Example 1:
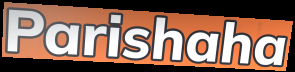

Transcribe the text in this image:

Parishaha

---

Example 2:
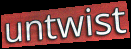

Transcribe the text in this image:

untwist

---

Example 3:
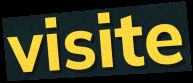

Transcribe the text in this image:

visite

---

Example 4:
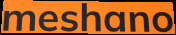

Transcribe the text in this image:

meshano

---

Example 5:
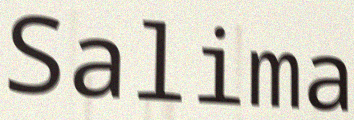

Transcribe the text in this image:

Salima